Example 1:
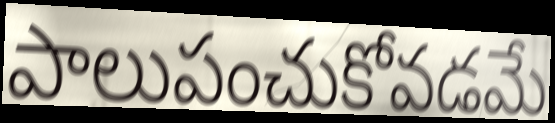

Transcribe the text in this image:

పాలుపంచుకోవడమే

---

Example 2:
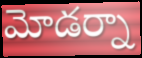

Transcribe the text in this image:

మోడర్నా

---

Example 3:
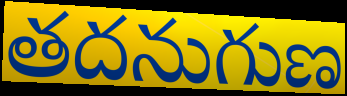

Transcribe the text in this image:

తదనుగుణ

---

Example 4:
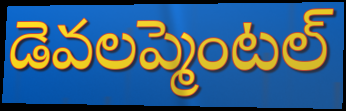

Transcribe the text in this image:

డెవలప్మెంటల్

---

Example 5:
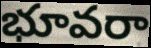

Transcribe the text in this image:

భూవరా